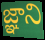
జ్ఞాని